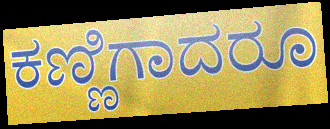
ಕಣ್ಣಿಗಾದರೂ